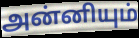
அன்னியும்